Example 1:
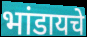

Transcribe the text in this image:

भांडायचे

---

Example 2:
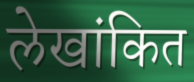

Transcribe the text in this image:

लेखांकित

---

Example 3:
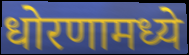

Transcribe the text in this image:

धोरणामध्ये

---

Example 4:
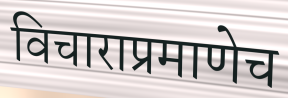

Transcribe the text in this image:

विचाराप्रमाणेच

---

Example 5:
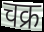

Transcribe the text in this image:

चक्र